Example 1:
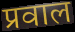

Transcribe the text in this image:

प्रवाल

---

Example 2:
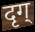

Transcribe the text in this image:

दृग्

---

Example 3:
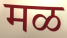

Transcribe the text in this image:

मळ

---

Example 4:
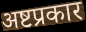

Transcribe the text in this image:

अष्टप्रकार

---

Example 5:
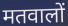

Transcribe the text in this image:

मतवालों